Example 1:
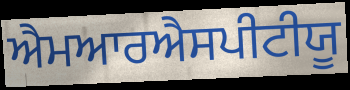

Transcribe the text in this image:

ਐਮਆਰਐਸਪੀਟੀਯੂ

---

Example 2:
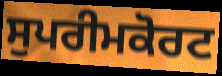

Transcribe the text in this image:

ਸੁਪਰੀਮਕੋਰਟ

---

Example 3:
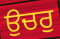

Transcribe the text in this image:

ਉਚਰੁ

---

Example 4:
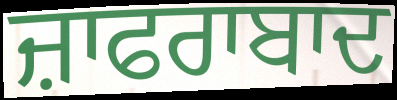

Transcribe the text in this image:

ਜ਼ਾਫਰਾਬਾਦ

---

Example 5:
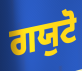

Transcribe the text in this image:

ਗਯੁਟੋ